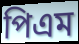
পিএম